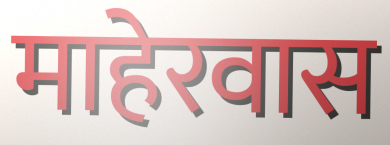
माहेरवास